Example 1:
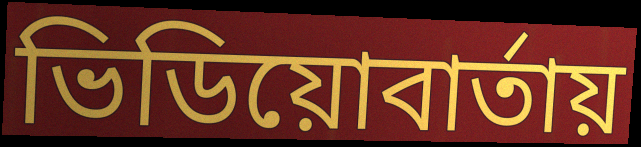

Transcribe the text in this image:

ভিডিয়োবার্তায়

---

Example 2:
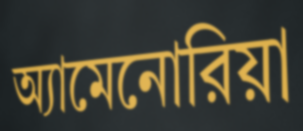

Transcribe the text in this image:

অ্যামেনোরিয়া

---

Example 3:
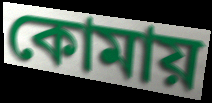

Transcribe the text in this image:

কোমায়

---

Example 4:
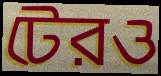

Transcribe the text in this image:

টেরও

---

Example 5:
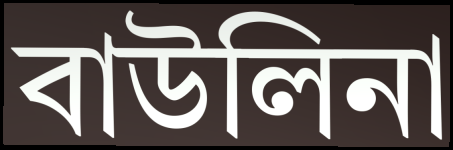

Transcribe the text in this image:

বাউলিনা